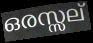
ഒരസ്സല്